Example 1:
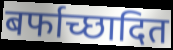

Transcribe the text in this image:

बर्फाच्छादित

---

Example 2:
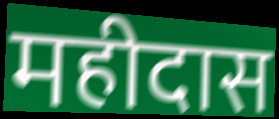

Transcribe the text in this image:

महीदास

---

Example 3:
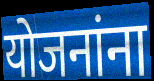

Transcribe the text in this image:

योजनांना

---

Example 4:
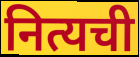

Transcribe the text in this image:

नित्यची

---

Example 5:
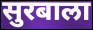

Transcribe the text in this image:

सुरबाला